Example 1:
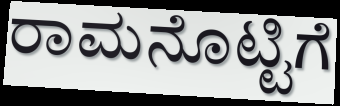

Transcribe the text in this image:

ರಾಮನೊಟ್ಟಿಗೆ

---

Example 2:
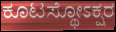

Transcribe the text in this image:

ಕೂಟಸ್ಥೋಽಕ್ಷರ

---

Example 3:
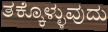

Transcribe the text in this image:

ತಕ್ಕೊಳ್ಳುವುದು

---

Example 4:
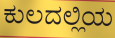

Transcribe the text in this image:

ಕುಲದಲ್ಲಿಯ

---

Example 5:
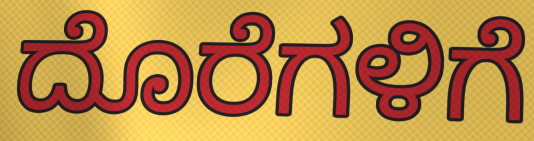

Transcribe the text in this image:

ದೊರೆಗಳಿಗೆ